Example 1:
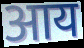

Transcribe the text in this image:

आय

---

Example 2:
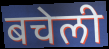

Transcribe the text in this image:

बचेली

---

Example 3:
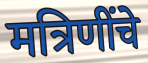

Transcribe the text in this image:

मत्रिणींचे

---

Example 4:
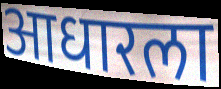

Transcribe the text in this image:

आधारला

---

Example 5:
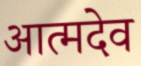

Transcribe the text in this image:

आत्मदेव